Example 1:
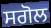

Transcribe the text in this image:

ਸਗੋਲ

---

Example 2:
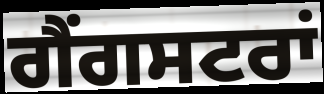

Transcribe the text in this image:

ਗੈਂਗਸਟਰਾਂ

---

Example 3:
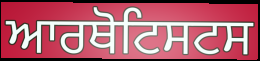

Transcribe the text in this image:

ਆਰਥੋਟਿਸਟਸ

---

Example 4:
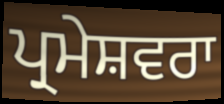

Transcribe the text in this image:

ਪ੍ਰਮੇਸ਼ਵਰਾ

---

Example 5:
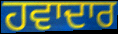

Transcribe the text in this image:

ਹਵਾਦਾਰ